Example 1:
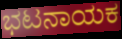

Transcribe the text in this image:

ಭಟನಾಯಕ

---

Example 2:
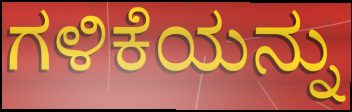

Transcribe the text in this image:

ಗಳಿಕೆಯನ್ನು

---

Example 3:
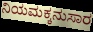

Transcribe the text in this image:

ನಿಯಮಕ್ಕನುಸಾರ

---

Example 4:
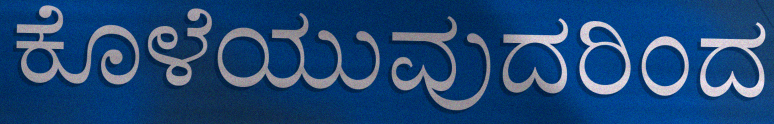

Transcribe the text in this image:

ಕೊಳೆಯುವುದರಿಂದ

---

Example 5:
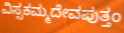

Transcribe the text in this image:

ವಿಸ್ಸಕಮ್ಮದೇವಪುತ್ತಂ